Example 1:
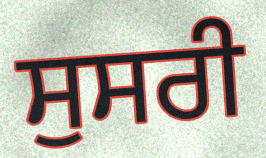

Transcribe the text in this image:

ਸੁਸਰੀ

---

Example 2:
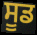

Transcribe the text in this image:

ਸੂਡ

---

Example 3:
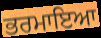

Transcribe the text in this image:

ਭਰਮਾਇਆ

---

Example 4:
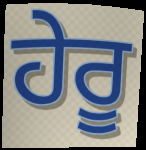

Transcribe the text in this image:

ਹੇਰੂ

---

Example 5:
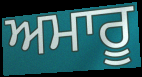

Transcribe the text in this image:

ਅਮਾਰੂ